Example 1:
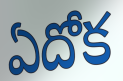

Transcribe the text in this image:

ఏదోక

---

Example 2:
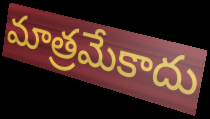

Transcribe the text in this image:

మాత్రమేకాదు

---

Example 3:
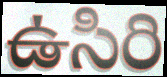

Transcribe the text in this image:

ఉసిరి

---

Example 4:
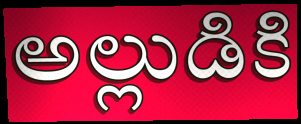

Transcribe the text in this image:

అల్లుడికి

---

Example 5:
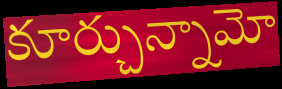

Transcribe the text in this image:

కూర్చున్నామో